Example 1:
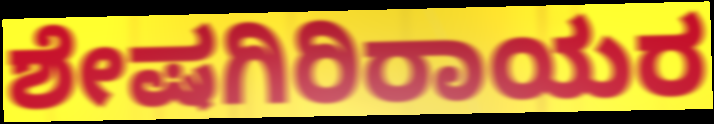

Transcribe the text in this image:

ಶೇಷಗಿರಿರಾಯರ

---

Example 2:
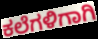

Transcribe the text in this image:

ಕಲೆಗಳಿಗಾಗಿ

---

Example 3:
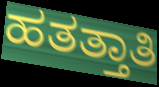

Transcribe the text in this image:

ಹತತ್ತಾತಿ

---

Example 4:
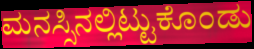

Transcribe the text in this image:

ಮನಸ್ಸಿನಲ್ಲಿಟ್ಟುಕೊಂಡು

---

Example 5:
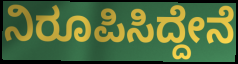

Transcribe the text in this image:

ನಿರೂಪಿಸಿದ್ದೇನೆ